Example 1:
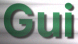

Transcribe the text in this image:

Gui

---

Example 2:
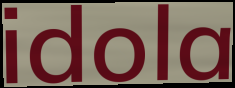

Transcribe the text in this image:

idola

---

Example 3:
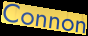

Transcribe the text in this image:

Connon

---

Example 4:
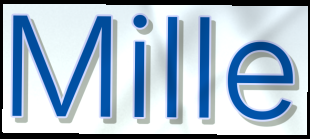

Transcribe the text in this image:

Mille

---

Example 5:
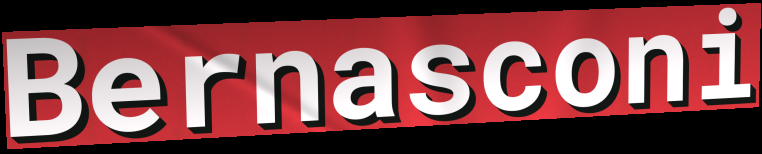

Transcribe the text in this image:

Bernasconi